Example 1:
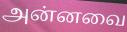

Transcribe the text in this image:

அன்னவை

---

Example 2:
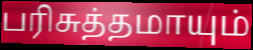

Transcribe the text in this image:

பரிசுத்தமாயும்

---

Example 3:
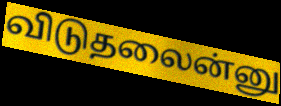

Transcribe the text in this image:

விடுதலைன்னு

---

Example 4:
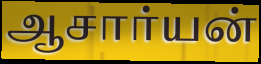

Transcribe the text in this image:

ஆசார்யன்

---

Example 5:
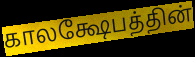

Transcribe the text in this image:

காலக்ஷேபத்தின்